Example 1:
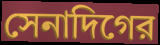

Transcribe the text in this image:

সেনাদিগের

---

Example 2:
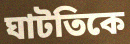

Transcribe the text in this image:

ঘাটতিকে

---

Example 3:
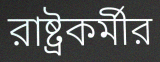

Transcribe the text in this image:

রাষ্ট্রকর্মীর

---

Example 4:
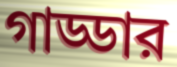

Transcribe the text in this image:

গাড্ডার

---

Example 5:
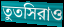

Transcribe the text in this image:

তুতসিরাও